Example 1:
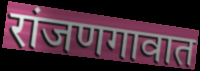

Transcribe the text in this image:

रांजणगावात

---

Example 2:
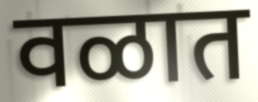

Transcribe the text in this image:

वळात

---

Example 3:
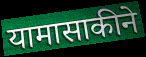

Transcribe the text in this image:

यामासाकीने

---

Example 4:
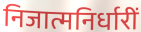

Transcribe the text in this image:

निजात्मनिर्धारीं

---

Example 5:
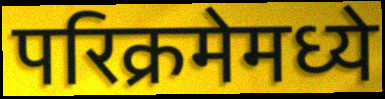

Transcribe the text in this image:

परिक्रमेमध्ये